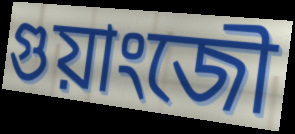
গুয়াংজৌ